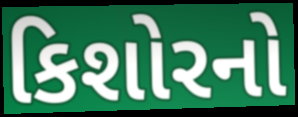
કિશોરનો